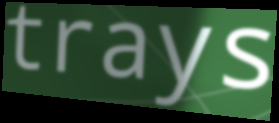
trays